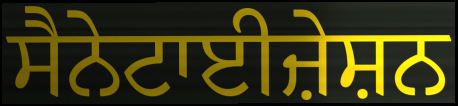
ਸੈਨੇਟਾਈਜ਼ੇਸ਼ਨ